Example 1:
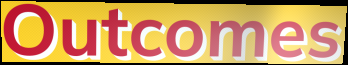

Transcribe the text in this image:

Outcomes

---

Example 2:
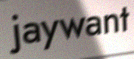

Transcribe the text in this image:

jaywant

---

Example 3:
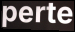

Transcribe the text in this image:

perte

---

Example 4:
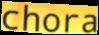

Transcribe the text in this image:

chora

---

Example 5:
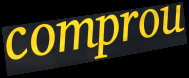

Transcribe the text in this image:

comprou